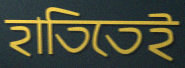
হাতিতেই